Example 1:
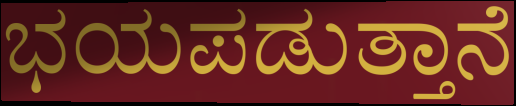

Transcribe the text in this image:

ಭಯಪಡುತ್ತಾನೆ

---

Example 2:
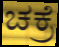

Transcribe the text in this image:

ಚಕ್ರೆ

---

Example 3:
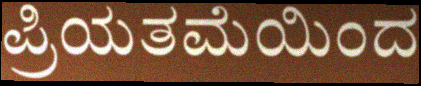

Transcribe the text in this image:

ಪ್ರಿಯತಮೆಯಿಂದ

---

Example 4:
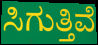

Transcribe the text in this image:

ಸಿಗುತ್ತಿವೆ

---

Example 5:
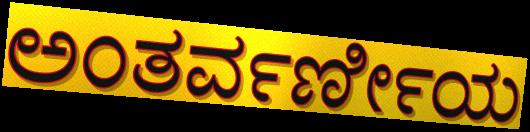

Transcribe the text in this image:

ಅಂತರ್ವರ್ಣೀಯ